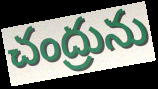
చంద్రును